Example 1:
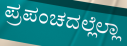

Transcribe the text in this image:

ಪ್ರಪಂಚದಲ್ಲೆಲ್ಲಾ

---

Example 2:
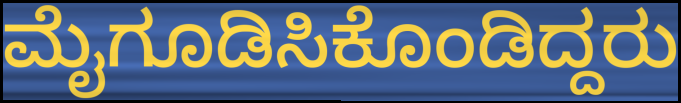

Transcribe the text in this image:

ಮೈಗೂಡಿಸಿಕೊಂಡಿದ್ದರು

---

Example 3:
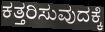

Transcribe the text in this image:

ಕತ್ತರಿಸುವುದಕ್ಕೆ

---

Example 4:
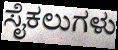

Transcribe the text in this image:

ಸೈಕಲುಗಳು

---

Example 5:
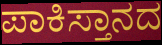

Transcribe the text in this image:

ಪಾಕಿಸ್ತಾನದ